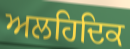
ਅਲਹਿਦਿਕ